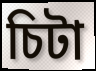
চিটা